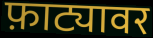
फ़ाट्यावर